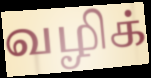
வழிக்